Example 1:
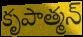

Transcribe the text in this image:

కృపాత్మన్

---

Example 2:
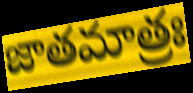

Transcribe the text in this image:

జాతమాత్రః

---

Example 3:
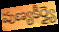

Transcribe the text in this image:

పుణ్యకీర్త్యై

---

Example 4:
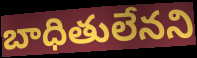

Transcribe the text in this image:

బాధితులేనని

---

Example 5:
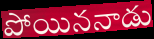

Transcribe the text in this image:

పోయిననాడు